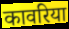
कावरिया